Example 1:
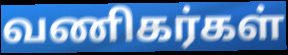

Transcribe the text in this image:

வணிகர்கள்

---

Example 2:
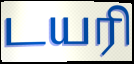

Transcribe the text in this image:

டயரி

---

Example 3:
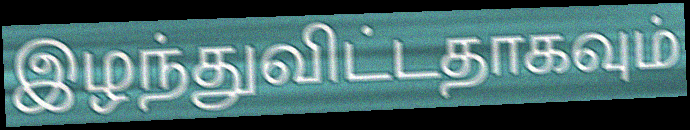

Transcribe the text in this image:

இழந்துவிட்டதாகவும்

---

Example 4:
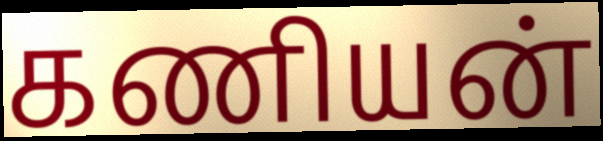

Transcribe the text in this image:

கணியன்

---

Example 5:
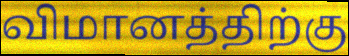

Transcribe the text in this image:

விமானத்திற்கு